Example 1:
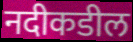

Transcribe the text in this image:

नदीकडील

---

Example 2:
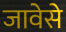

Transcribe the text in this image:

जावेसे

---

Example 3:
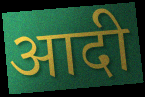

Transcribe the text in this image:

आदी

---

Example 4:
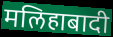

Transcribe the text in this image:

मलिहाबादी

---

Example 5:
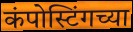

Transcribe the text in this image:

कंपोस्टिंगच्या